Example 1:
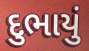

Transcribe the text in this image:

દુભાયું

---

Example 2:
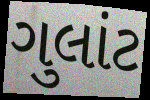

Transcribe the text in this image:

ગુલાંટ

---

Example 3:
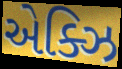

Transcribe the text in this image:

એક્ઝિ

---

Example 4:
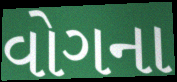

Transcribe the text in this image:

વોગના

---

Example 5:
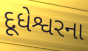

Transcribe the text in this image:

દૂધેશ્વરના